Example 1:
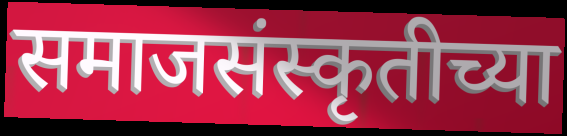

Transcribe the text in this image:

समाजसंस्कृतीच्या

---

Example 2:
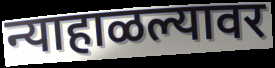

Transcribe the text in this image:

न्याहाळल्यावर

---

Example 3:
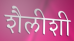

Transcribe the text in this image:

शैलीशी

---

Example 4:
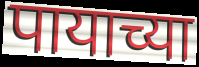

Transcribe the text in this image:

पायाच्या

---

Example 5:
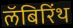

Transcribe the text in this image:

लॅबिरिंथ